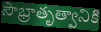
సౌభ్రాతృత్వానికి